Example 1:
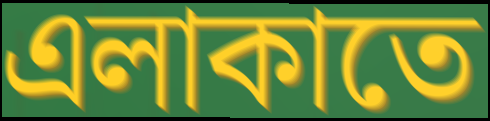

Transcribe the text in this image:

এলাকাতে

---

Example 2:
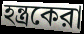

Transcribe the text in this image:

হন্ত্রকেরা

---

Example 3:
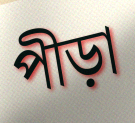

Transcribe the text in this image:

পীড়া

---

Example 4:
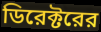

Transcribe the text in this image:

ডিরেক্টরের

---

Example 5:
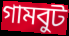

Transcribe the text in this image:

গামবুট